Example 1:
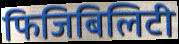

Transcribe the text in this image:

फिजिबिलिटी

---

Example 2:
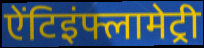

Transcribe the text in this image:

ऐंटिइंफ्लामेट्री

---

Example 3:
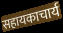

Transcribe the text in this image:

सहायकाचार्य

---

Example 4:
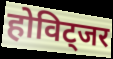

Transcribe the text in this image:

होविट्जर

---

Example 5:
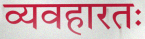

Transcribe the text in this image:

व्यवहारतः